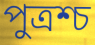
পুত্রশ্চ